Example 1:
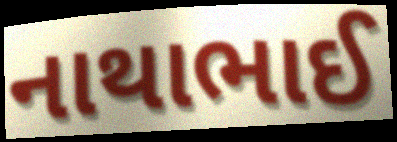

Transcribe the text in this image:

નાથાભાઈ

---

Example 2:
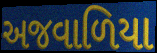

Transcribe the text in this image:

અજવાળિયા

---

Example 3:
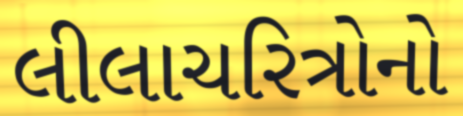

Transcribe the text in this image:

લીલાચરિત્રોનો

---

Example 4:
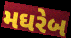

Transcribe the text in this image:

મઘરેબ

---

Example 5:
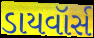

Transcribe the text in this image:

ડાયવૉર્સ